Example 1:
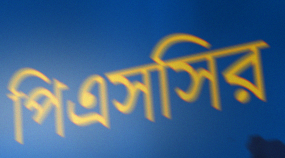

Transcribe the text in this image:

পিএসসির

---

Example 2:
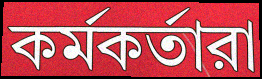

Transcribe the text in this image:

কর্মকর্তারা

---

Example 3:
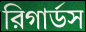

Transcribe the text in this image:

রিগার্ডস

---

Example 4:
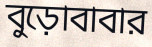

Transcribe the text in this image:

বুড়োবাবার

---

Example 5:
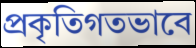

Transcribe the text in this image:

প্রকৃতিগতভাবে